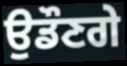
ਉਡੌਣਗੇ